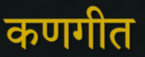
कणगीत